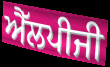
ਐੱਲਪੀਜੀ